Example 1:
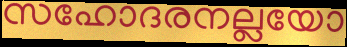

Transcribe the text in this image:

സഹോദരനല്ലയോ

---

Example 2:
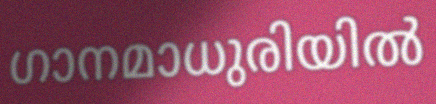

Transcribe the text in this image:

ഗാനമാധുരിയിൽ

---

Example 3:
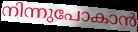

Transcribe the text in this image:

നിന്നുപോകാൻ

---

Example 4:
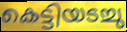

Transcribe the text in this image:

കെട്ടിയടച്ചു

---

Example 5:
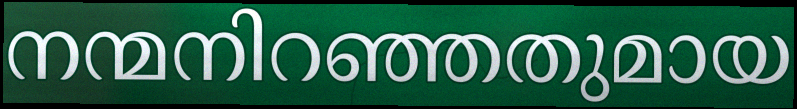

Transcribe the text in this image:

നന്മനിറഞ്ഞതുമായ